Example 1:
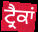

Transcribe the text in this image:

ਟ੍ਰੈਕਾਂ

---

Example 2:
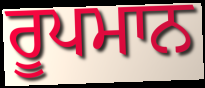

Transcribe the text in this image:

ਰੂਪਮਾਨ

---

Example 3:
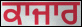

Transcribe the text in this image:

ਕਾਜਾਰ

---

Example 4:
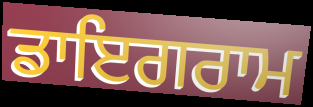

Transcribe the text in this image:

ਡਾਇਗਰਾਮ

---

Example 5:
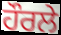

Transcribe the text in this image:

ਹੌਰਲੇ